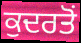
ਕੁਦਰਤੋਂ